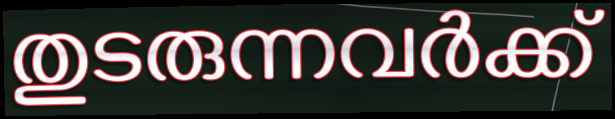
തുടരുന്നവർക്ക്